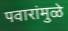
पवारांमुळे